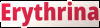
Erythrina